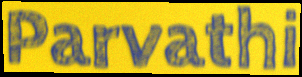
Parvathi